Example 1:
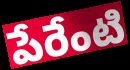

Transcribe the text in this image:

పేరేంటి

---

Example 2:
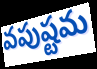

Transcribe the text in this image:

వపుష్టమ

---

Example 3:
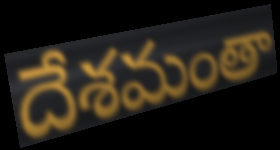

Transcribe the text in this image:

దేశమంతా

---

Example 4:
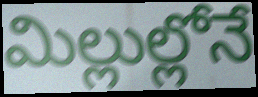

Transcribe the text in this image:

మిల్లుల్లోనే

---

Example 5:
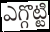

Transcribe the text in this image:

ఎగ్గొట్టి